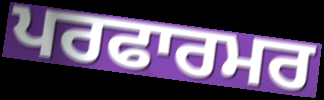
ਪਰਫਾਰਮਰ